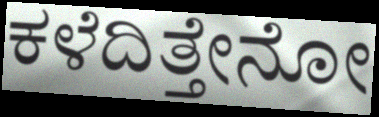
ಕಳೆದಿತ್ತೇನೋ